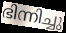
ഭിന്നിച്ചു